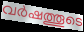
വർഷത്തൂടെ